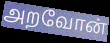
அறவோன்